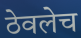
ठेवलेच